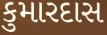
કુમારદાસ